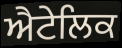
ਐਟੇਲਿਕ